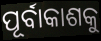
ପୂର୍ବାକାଶକୁ